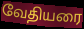
வேதியரை